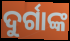
ଦୁର୍ଗାଙ୍କ